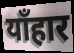
याँहार